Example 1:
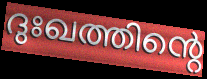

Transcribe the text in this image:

ദുഃഖത്തിന്റെ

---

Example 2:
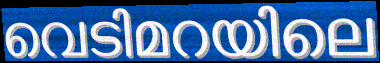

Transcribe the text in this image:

വെടിമറയിലെ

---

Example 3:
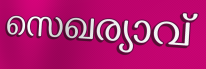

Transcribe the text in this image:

സെഖര്യാവ്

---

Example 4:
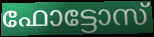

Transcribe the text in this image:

ഫോട്ടോസ്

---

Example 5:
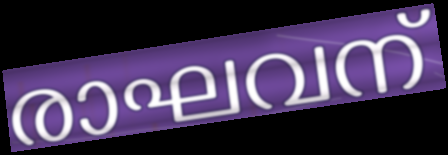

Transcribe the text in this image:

രാഘവന്